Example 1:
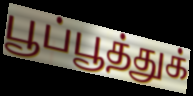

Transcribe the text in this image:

பூப்பூத்துக்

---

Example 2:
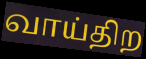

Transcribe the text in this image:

வாய்திற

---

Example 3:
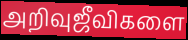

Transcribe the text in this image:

அறிவுஜீவிகளை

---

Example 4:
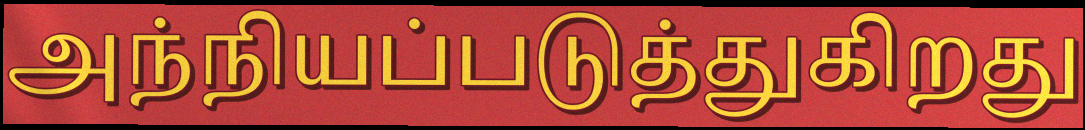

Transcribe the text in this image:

அந்நியப்படுத்துகிறது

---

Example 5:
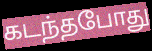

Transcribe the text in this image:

கடந்தபோது